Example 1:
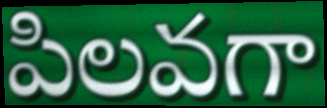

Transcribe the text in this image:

పిలవగా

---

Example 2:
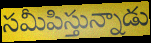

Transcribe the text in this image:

సమీపిస్తున్నాడు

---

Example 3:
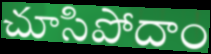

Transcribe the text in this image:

చూసిపోదాం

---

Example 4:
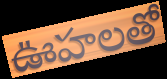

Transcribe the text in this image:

ఊహలతో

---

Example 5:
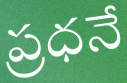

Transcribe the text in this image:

ప్రధనే